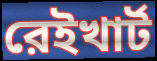
রেইখার্ট